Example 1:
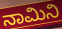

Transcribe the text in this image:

ನಾಮಿನಿ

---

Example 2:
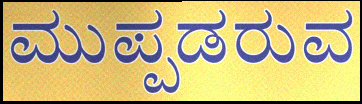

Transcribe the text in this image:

ಮುಪ್ಪಡರುವ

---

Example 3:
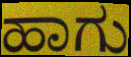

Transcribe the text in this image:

ಹಾಗು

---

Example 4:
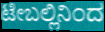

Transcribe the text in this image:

ಟೇಬಲ್ಲಿನಿಂದ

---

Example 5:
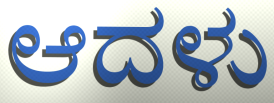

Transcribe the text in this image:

ಆದಳು